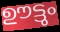
ഊട്ടും